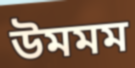
উমমম